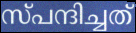
സ്പന്ദിച്ചത്